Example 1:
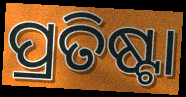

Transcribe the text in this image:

ପ୍ରତିଷ୍ଟା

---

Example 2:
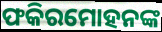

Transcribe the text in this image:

ଫକିରମୋହନଙ୍କ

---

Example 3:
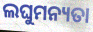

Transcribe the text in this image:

ଲଘୁମନ୍ୟତା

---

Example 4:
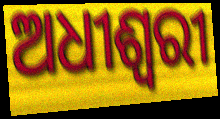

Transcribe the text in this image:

ଅଧୀଶ୍ୱରୀ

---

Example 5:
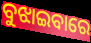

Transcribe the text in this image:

ବୁଝାଇବାରେ